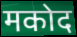
मकोद